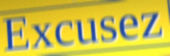
Excusez